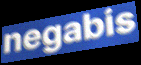
negabis